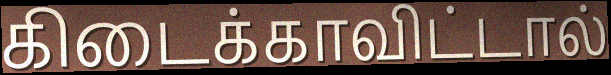
கிடைக்காவிட்டால்